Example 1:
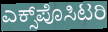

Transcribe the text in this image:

ಎಕ್ಸ್‌ಪೊಸಿಟರಿ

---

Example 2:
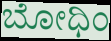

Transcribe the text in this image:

ಬೋಧಿಂ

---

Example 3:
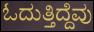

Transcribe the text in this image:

ಓದುತ್ತಿದ್ದೆವು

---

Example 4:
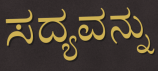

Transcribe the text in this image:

ಸದ್ಯವನ್ನು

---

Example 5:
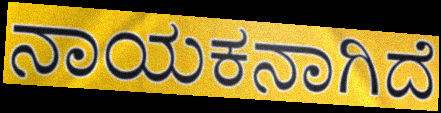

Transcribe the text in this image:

ನಾಯಕನಾಗಿದೆ